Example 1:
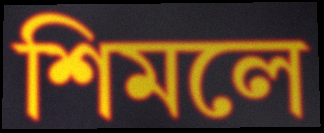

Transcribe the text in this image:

শিমলে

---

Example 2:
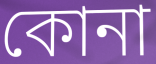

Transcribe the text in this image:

কোনা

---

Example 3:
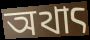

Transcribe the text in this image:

অথাৎ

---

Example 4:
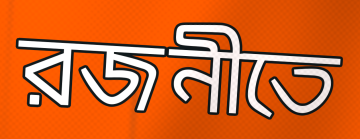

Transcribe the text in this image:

রজনীতে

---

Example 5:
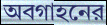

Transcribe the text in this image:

অবগাহনের